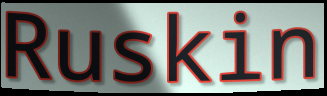
Ruskin